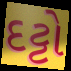
દટ્ટો